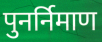
पुनर्निमाण